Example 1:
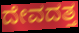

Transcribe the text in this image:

ದೇವದತ್ತ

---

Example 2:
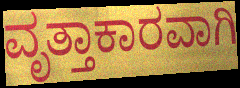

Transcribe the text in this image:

ವೃತ್ತಾಕಾರವಾಗಿ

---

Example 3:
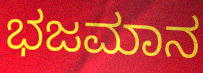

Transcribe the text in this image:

ಭಜಮಾನ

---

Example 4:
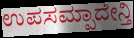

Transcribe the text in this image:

ಉಪಸಮ್ಪಾದೇನ್ತಿ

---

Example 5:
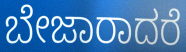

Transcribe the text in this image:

ಬೇಜಾರಾದರೆ